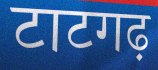
टाटगढ़